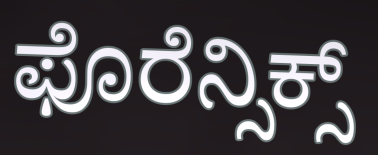
ಫೊರೆನ್ಸಿಕ್ಸ್